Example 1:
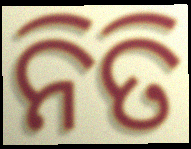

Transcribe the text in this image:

ନିତି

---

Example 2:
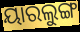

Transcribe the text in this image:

ୟାରଲୁଙ୍ଗ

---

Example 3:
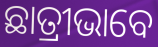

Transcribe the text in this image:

ଛାତ୍ରୀଭାବେ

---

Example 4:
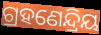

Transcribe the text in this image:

ଗ୍ରହଣେନ୍ଦ୍ରିୟ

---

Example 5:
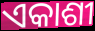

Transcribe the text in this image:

ଏକାଶୀ